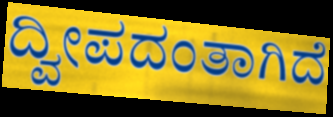
ದ್ವೀಪದಂತಾಗಿದೆ